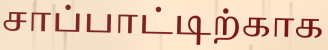
சாப்பாட்டிற்காக